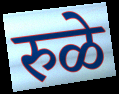
रुळे